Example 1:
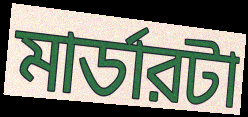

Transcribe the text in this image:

মার্ডারটা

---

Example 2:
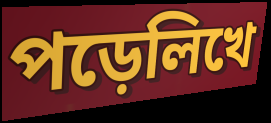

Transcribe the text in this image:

পড়েলিখে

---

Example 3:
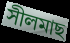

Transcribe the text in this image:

সীলমাছ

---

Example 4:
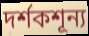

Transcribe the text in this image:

দর্শকশূন্য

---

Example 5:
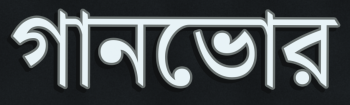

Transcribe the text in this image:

গানভোর